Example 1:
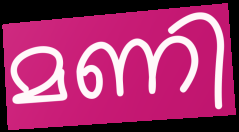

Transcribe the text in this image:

മണി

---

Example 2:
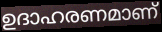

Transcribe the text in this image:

ഉദാഹരണമാണ്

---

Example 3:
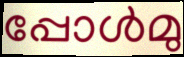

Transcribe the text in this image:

പ്പോൾമു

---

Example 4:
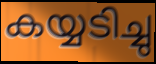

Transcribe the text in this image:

കയ്യടിച്ചു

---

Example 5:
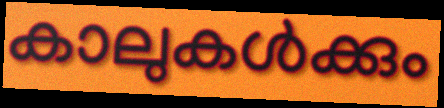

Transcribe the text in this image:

കാലുകൾക്കും